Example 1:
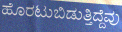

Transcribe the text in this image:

ಹೊರಟುಬಿಡುತ್ತಿದ್ದೆವು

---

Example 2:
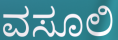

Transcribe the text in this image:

ವಸೂಲಿ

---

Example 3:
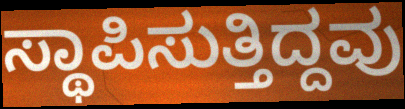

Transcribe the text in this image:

ಸ್ಥಾಪಿಸುತ್ತಿದ್ದವು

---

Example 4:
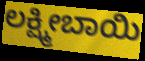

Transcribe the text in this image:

ಲಕ್ಷ್ಮೀಬಾಯಿ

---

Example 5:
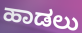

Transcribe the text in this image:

ಹಾಡಲು